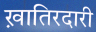
ख़ातिरदारी